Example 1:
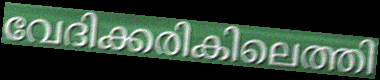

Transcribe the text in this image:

വേദിക്കരികിലെത്തി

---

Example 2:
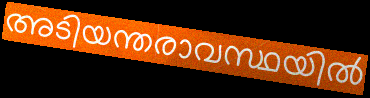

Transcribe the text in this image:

അടിയന്തരാവസ്ഥയിൽ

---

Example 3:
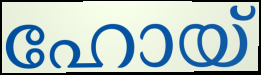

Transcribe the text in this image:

ഹോയ്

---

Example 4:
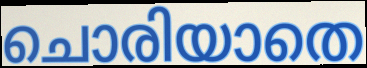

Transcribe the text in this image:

ചൊരിയാതെ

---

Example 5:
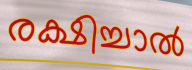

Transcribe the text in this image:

രക്ഷിച്ചാൽ